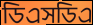
ডিএসডিএ